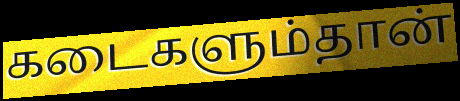
கடைகளும்தான்